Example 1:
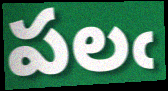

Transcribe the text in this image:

పలఁ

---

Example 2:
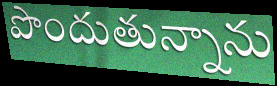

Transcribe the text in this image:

పొందుతున్నాను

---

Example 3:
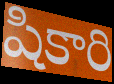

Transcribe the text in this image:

షికారి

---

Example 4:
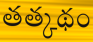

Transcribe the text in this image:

తత్కథం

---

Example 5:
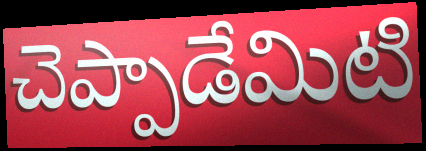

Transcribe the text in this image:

చెప్పాడేమిటి